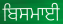
ਬਿਸਮਾਈ